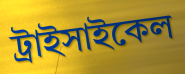
ট্রাইসাইকেল